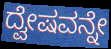
ದ್ವೇಷವನ್ನೇ